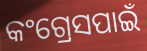
କଂଗ୍ରେସପାଇଁ